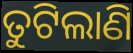
ତୁଟିଲାଣି